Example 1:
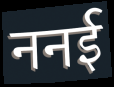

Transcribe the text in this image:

ननई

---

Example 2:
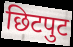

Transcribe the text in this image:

छिटपुट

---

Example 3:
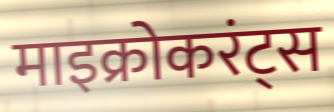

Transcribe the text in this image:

माइक्रोकरंट्स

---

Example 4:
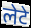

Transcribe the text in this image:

लेटे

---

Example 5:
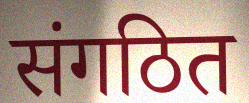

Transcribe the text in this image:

संगठित